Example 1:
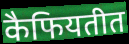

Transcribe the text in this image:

कैफियतीत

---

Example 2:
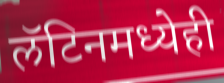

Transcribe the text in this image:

लॅटिनमध्येही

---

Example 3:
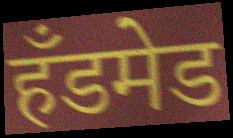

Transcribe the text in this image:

हॅंडमेड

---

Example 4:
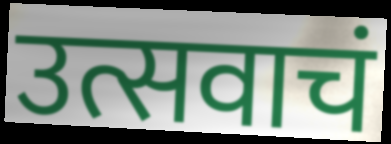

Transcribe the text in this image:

उत्सवाचं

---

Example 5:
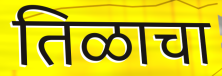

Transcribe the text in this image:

तिळाचा